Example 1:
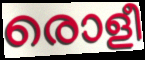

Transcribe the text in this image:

രൊളീ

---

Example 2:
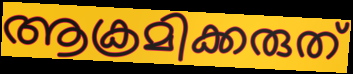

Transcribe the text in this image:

ആക്രമിക്കരുത്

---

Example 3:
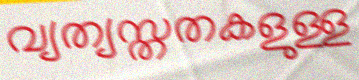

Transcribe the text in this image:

വ്യത്യസ്തതകളുള്ള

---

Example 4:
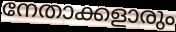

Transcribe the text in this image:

നേതാക്കളാരും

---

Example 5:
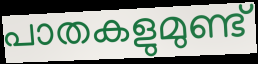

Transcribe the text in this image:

പാതകളുമുണ്ട്